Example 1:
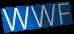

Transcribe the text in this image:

WWF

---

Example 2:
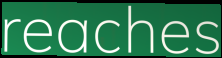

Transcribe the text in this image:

reaches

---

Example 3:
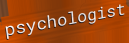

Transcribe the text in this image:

psychologist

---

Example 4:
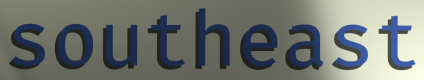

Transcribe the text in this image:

southeast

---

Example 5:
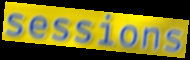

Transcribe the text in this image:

sessions